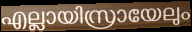
എല്ലായിസ്രായേലും